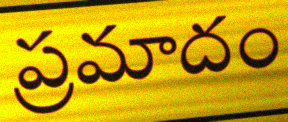
ప్రమాదం